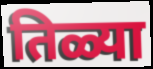
तिळ्या